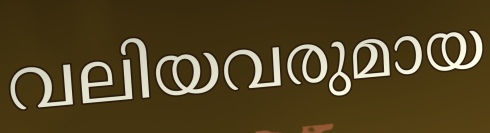
വലിയവരുമായ